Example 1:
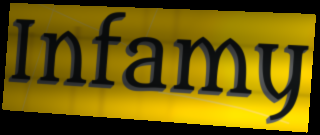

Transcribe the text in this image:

Infamy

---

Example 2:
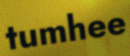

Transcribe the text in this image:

tumhee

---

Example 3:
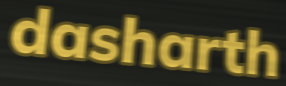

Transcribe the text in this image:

dasharth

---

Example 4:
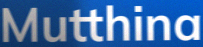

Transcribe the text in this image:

Mutthina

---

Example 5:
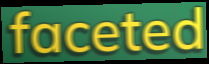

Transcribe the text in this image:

faceted